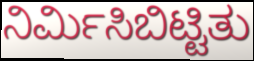
ನಿರ್ಮಿಸಿಬಿಟ್ಟಿತು